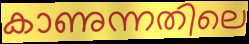
കാണുന്നതിലെ